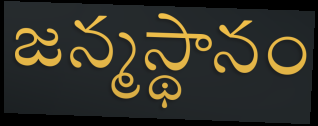
జన్మస్థానం